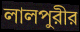
লালপুরীর